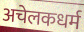
अचेलकधर्म